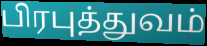
பிரபுத்துவம்